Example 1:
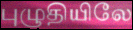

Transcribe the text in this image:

புழுதியிலே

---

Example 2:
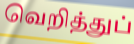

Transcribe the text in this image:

வெறித்துப்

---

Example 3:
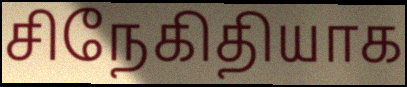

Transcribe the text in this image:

சிநேகிதியாக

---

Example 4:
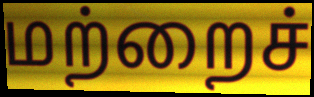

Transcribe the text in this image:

மற்றைச்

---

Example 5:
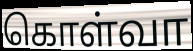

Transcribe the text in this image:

கொள்வா